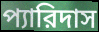
প্যারিদাস